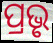
ପ୍ରଭୃ